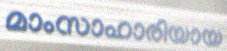
മാംസാഹാരിയായ